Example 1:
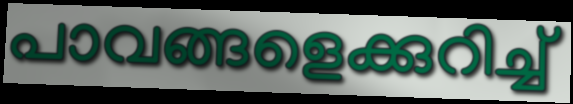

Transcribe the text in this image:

പാവങ്ങളെക്കുറിച്ച്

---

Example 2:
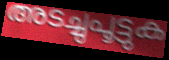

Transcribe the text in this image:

അടച്ചുപൂട്ടുക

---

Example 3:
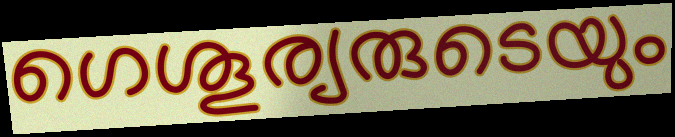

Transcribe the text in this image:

ഗെശൂര്യരുടെയും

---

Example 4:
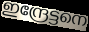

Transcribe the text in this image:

ഇന്ദ്രേട്ടനെ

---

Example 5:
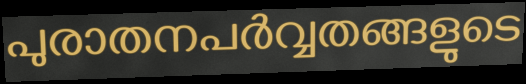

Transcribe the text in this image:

പുരാതനപർവ്വതങ്ങളുടെ